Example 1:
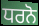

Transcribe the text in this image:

ਧਰਨੋ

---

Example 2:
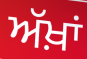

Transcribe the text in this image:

ਅੱਖ਼ਾਂ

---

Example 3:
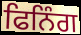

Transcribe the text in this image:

ਫਿਨਿੰਗ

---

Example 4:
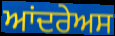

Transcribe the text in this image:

ਆਂਦਰੇਅਸ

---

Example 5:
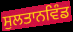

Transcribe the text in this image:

ਸੁਲਤਾਨਵਿੰਡ